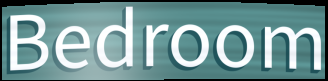
Bedroom